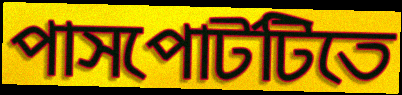
পাসপোর্টটিতে